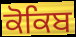
ਕੋਕਿਬ